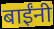
बाईंनी